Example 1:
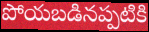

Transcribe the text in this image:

పోయబడినప్పటికి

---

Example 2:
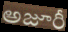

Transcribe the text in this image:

అజూరీ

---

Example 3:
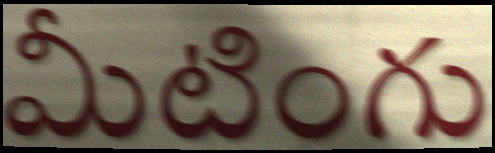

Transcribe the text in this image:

మీటింగు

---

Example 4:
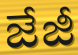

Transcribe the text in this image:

జేజీ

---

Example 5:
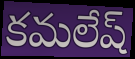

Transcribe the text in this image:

కమలేష్